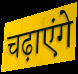
चढ़ाएंगे